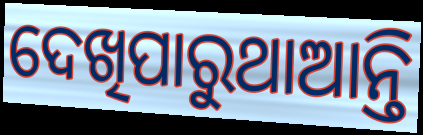
ଦେଖିପାରୁଥାଆନ୍ତି